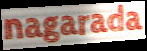
nagarada